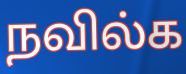
நவில்க